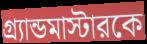
গ্র্যান্ডমাস্টারকে